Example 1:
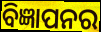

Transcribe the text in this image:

ବିଜ୍ଞାପନର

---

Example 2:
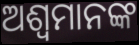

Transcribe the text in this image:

ଅଶ୍ୱମାନଙ୍କ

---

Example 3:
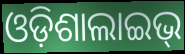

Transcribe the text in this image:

ଓଡ଼ିଶାଲାଇଭ୍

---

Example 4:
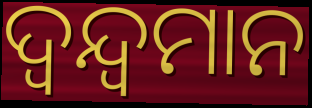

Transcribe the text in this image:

ଦ୍ଵନ୍ଦ୍ଵମାନ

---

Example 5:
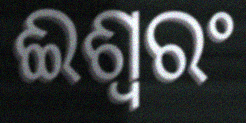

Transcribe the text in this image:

ଈଶ୍ଵରଂ